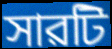
সাৱটি